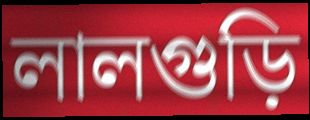
লালগুড়ি